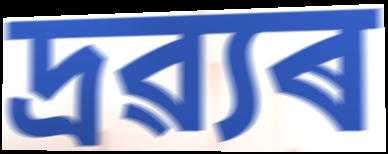
দ্ৰৱ্যৰ